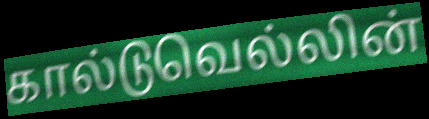
கால்டுவெல்லின்